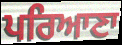
ਪਰਿਆਣਾ